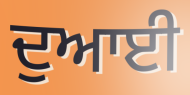
ਦੁਆਈ